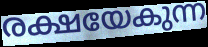
രക്ഷയേകുന്ന